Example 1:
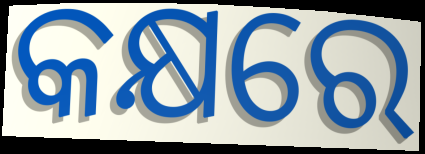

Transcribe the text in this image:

କକ୍ଷରେ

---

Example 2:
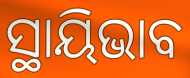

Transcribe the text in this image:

ସ୍ଥାୟିଭାବ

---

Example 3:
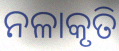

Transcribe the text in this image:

ନଳାକୃତି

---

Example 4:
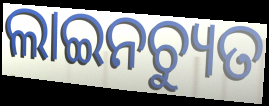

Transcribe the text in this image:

ଲାଇନଚ୍ୟୁତ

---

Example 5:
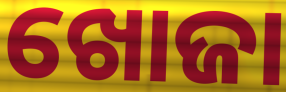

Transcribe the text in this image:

ଖୋଜା